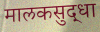
मालकसुद्धा